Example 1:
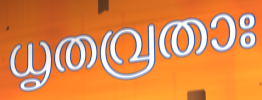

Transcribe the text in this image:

ധൃതവ്രതാഃ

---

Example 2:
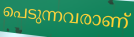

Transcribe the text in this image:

പെടുന്നവരാണ്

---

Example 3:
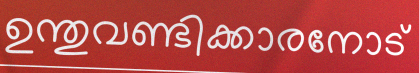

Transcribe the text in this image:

ഉന്തുവണ്ടിക്കാരനോട്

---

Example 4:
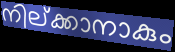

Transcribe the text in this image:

നില്ക്കാനാകും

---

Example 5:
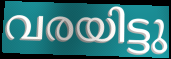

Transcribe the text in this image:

വരയിട്ടു